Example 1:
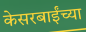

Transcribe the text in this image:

केसरबाईंच्या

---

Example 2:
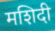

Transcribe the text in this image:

मशिदी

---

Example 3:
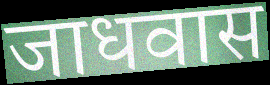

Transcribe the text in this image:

जाधवास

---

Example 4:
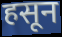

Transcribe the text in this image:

हसून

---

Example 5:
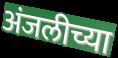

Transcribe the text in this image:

अंजलीच्या